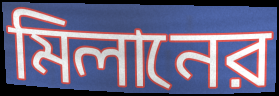
মিলানের